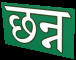
छन्न